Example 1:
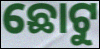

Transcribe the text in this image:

ଛୋଟୁ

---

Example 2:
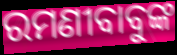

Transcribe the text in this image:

ରମଣୀବାବୁଙ୍କ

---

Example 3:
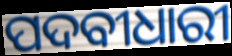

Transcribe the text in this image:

ପଦବୀଧାରୀ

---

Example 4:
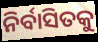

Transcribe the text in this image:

ନିର୍ବାସିତକୁ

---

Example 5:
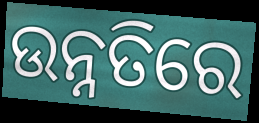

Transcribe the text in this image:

ଉନ୍ନତିରେ